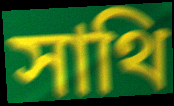
সাথি